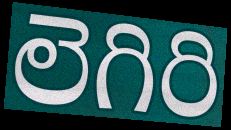
లెగిరి